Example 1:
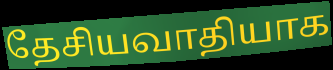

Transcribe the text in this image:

தேசியவாதியாக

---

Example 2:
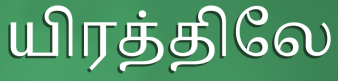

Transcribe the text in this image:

யிரத்திலே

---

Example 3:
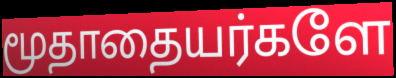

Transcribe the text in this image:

மூதாதையர்களே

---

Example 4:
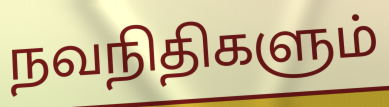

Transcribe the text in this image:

நவநிதிகளும்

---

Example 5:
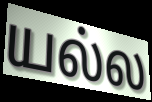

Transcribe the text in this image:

யல்ல